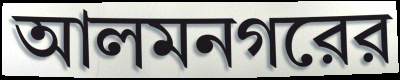
আলমনগরের